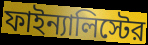
ফাইন্যালিস্টের